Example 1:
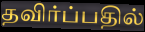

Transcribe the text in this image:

தவிர்ப்பதில்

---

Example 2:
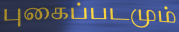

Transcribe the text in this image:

புகைப்படமும்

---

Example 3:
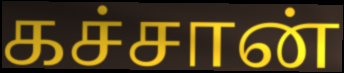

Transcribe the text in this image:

கச்சான்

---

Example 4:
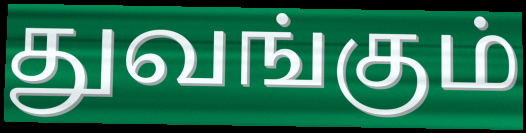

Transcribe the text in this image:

துவங்கும்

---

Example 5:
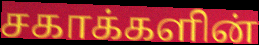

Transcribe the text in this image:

சகாக்களின்